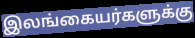
இலங்கையர்களுக்கு